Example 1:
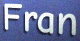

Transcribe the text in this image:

Fran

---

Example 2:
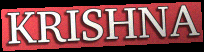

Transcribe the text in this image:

KRISHNA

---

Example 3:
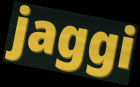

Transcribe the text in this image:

jaggi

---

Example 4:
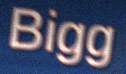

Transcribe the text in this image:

Bigg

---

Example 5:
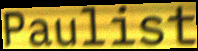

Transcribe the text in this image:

Paulist